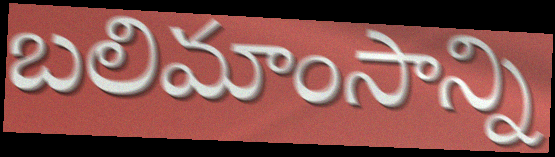
బలిమాంసాన్ని